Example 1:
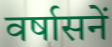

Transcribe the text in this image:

वर्षासनें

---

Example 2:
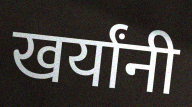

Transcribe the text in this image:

खर्यांनी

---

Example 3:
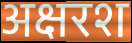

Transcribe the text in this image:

अक्षरश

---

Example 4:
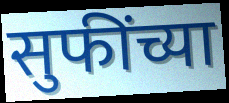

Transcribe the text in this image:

सुफींच्या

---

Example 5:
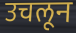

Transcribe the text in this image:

उचलून